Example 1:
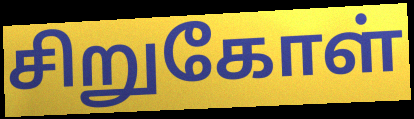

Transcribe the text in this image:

சிறுகோள்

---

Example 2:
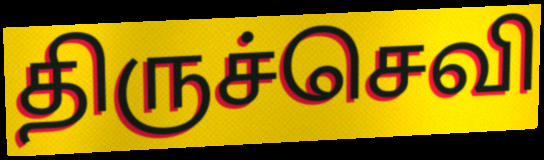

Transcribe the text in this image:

திருச்செவி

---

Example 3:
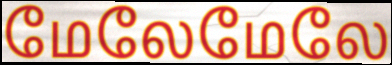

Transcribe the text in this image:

மேலேமேலே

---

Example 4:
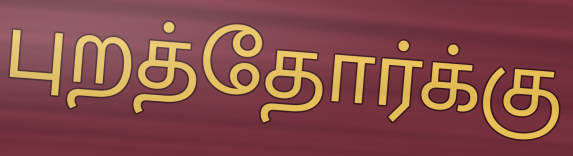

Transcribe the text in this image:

புறத்தோர்க்கு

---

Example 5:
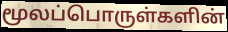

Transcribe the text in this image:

மூலப்பொருள்களின்